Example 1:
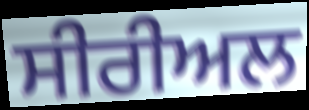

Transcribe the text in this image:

ਸੀਰੀਅਲ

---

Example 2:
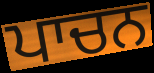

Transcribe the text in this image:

ਪਾਚਨ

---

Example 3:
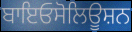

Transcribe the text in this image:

ਬਾਇਓਸੋਲਿਊਸ਼ਨ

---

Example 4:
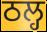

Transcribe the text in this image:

ਠਲ੍ਹ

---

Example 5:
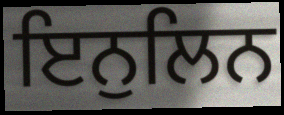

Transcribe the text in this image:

ਇਨੁਲਿਨ